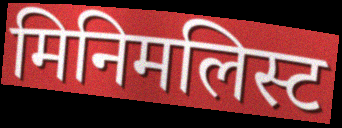
मिनिमलिस्ट